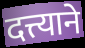
दत्त्याने